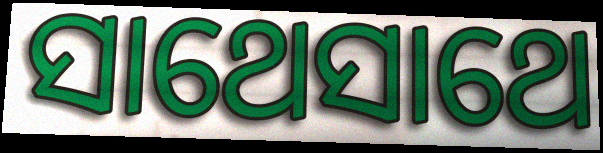
ସାଥେସାଥେ